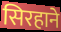
सिरहाने